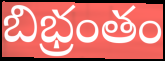
బిభ్రంతం